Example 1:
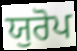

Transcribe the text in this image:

ਯੁਰੋਪ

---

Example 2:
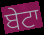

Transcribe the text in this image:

ਬੇਟਾ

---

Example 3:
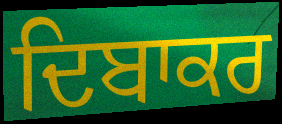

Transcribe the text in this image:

ਦਿਬਾਕਰ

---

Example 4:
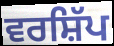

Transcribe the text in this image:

ਵਰਸ਼ਿੱਪ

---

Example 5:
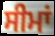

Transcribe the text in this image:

ਸੀਮਾਂ